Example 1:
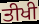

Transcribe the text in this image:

ਤੀਖੀ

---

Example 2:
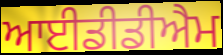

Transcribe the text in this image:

ਆਈਡੀਡੀਐਮ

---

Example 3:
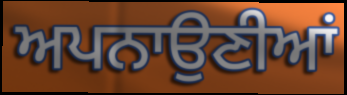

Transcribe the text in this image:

ਅਪਨਾਉਣੀਆਂ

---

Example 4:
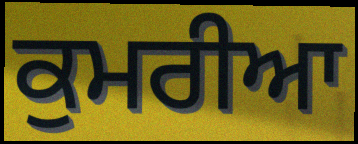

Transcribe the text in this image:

ਕੁਮਰੀਆ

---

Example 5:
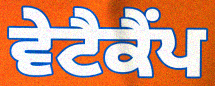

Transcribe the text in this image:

ਵੇਟੈਕੈਂਪ